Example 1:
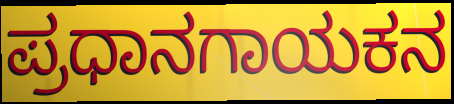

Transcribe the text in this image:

ಪ್ರಧಾನಗಾಯಕನ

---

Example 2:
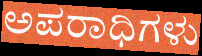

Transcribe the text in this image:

ಅಪರಾಧಿಗಳು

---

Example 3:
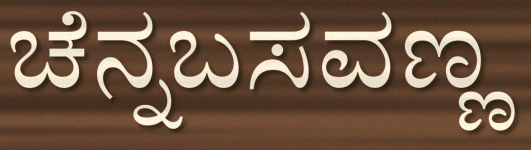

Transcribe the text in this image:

ಚೆನ್ನಬಸವಣ್ಣ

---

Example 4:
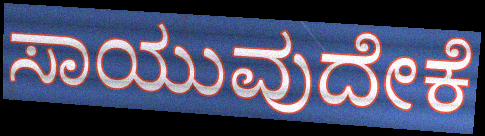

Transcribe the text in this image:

ಸಾಯುವುದೇಕೆ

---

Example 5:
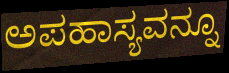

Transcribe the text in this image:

ಅಪಹಾಸ್ಯವನ್ನೂ